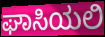
ಘಾಸಿಯಲಿ